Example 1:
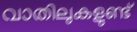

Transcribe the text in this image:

വാതിലുകളുണ്ട്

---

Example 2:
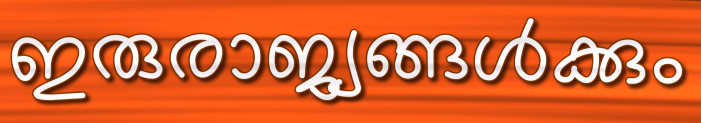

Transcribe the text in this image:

ഇരുരാജ്യങ്ങൾക്കും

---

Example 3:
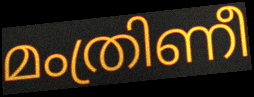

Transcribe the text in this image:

മംത്രിണീ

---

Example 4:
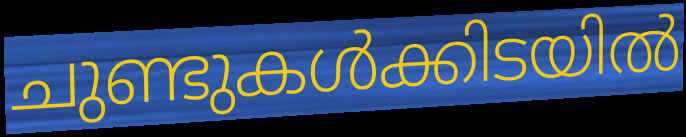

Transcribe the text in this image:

ചുണ്ടുകൾക്കിടയിൽ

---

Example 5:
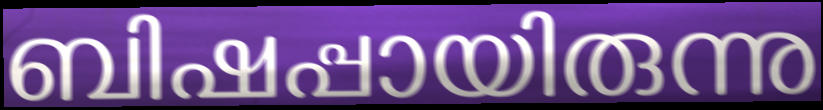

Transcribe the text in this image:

ബിഷപ്പായിരുന്നു